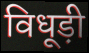
विधूड़ी